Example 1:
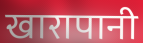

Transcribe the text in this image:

खारापानी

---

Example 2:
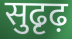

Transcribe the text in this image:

सुढृढ़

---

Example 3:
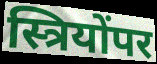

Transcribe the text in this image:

स्त्रियोंपर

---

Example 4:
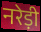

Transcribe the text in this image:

नरेड़ी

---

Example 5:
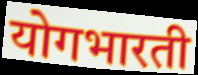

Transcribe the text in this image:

योगभारती